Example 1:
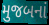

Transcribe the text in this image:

મુજબનાં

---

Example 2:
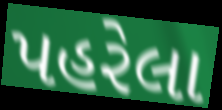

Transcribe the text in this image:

પહરેલા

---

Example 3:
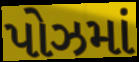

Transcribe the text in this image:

પોઝમાં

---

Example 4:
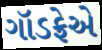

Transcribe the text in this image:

ગૉડફ્રેએ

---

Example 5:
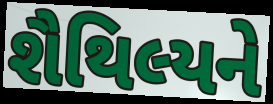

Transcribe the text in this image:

શૈથિલ્યને